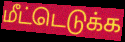
மீட்டெடுக்க